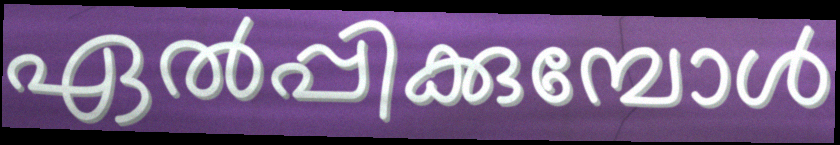
ഏൽപ്പിക്കുമ്പോൾ